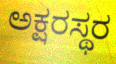
ಅಕ್ಷರಸ್ಥರ